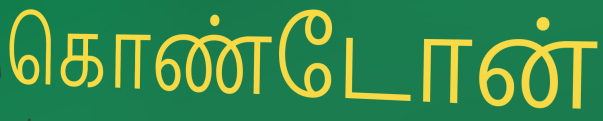
கொண்டோன்